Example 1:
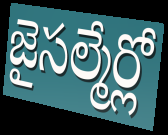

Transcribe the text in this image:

జైసల్మేర్లో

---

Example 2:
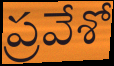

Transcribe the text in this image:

ప్రవేశో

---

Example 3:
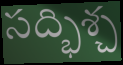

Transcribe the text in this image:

సద్భిశ్చ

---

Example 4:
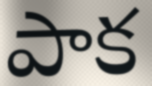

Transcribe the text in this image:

పాక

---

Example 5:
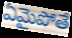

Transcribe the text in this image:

ఏమైపోతే